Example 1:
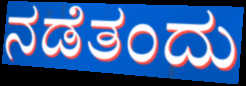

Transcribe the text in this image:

ನಡೆತಂದು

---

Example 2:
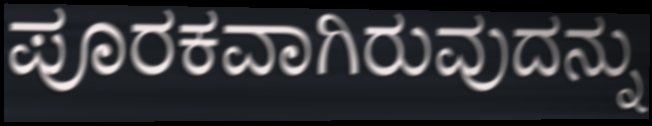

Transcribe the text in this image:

ಪೂರಕವಾಗಿರುವುದನ್ನು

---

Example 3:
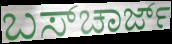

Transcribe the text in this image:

ಬಸ್‌ಚಾರ್ಜ್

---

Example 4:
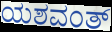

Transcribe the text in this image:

ಯಶವಂತ್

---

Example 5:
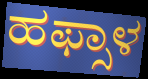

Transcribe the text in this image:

ಹಫ್ಸಾಳ